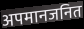
अपमानजनित